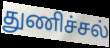
துணிச்சல்